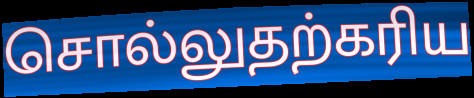
சொல்லுதற்கரிய